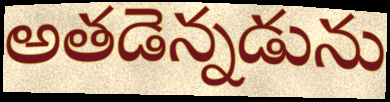
అతడెన్నడును